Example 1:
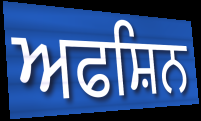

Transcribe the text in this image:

ਅਫਸ਼ਿਨ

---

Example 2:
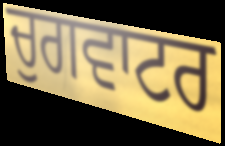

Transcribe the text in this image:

ਚੁਗਵਾਟਰ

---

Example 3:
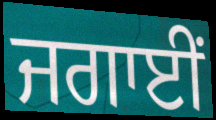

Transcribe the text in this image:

ਜਗਾਈਂ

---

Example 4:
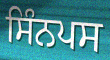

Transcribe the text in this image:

ਸਿੰਨਪਸ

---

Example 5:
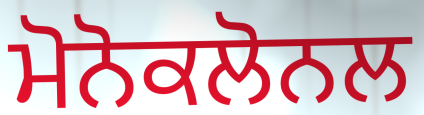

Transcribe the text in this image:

ਮੋਨੋਕਲੋਨਲ